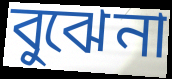
বুঝেনা